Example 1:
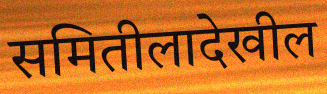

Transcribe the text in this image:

समितीलादेखील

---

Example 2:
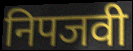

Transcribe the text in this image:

निपजवी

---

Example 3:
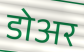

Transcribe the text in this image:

डोअर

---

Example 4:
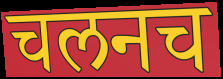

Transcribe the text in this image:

चलनच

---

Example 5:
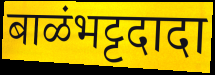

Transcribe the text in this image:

बाळंभट्टदादा